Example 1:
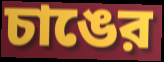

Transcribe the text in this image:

চাঙের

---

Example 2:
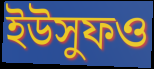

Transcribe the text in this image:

ইউসুফও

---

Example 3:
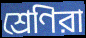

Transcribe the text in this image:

শ্রেণিরা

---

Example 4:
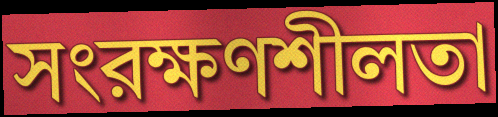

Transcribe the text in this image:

সংরক্ষণশীলতা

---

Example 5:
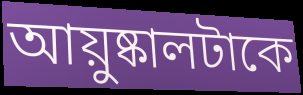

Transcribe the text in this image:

আয়ুষ্কালটাকে